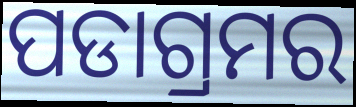
ପଡାଗ୍ରମର